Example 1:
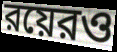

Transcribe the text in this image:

রয়েরও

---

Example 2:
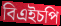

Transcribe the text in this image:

বিএইচপি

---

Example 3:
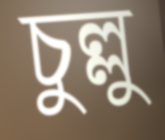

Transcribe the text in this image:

চুল্লু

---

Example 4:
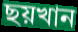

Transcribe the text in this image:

ছয়খান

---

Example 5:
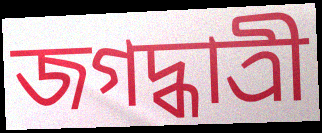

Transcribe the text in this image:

জগদ্ধাত্রী